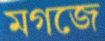
মগজে